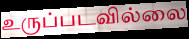
உருப்படவில்லை